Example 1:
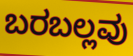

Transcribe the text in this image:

ಬರಬಲ್ಲವು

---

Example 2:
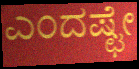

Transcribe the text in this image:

ಎಂದಷ್ಟೇ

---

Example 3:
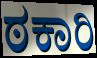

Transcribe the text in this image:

ಠಕಾರಿ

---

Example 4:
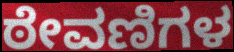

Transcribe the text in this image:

ಠೇವಣಿಗಳ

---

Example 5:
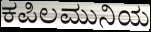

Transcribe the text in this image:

ಕಪಿಲಮುನಿಯ